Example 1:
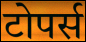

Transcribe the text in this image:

टोपर्स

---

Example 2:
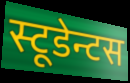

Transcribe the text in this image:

स्टूडेन्टस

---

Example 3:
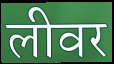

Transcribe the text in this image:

लीवर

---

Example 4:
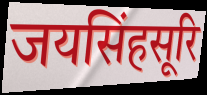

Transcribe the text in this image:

जयसिंहसूरि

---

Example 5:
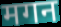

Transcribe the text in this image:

मगन